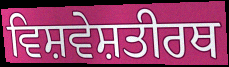
ਵਿਸ਼ਵੇਸ਼ਤੀਰਥ